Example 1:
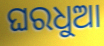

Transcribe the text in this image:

ଘରଧୁଆ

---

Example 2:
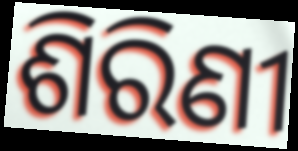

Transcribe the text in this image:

ଶିରିଣୀ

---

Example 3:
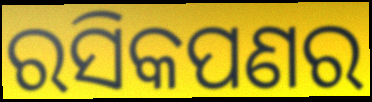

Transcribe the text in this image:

ରସିକପଣର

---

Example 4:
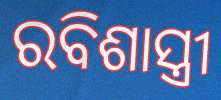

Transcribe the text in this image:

ରବିଶାସ୍ତ୍ରୀ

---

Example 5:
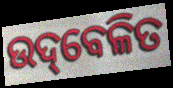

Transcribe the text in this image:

ଉଦ୍‌ବେଳିତ